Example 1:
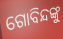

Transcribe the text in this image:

ଗୋବିନ୍ଦଙ୍କୁ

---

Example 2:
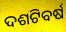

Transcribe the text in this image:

ଦଶଟିବର୍ଷ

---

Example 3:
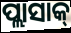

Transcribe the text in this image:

ପ୍ଲାସାକ୍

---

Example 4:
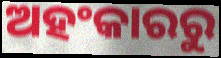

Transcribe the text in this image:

ଅହଂକାରରୁ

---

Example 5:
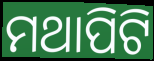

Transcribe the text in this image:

ମଥାପିଟି